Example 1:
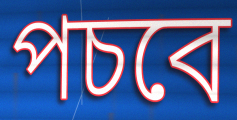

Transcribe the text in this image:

পচবে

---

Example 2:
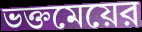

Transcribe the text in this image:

ভক্তমেয়ের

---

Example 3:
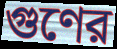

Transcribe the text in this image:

গুণের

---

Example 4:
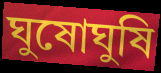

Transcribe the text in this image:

ঘুষোঘুষি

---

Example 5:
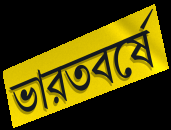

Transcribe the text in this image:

ভারতবর্ষে